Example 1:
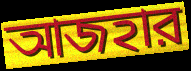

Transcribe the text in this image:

আজহার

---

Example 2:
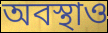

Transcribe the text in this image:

অবস্থাও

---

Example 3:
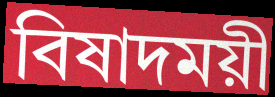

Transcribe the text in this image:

বিষাদময়ী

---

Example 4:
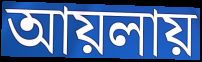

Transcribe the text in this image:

আয়লায়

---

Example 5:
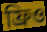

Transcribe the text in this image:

ফ্রিও